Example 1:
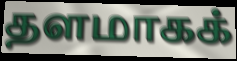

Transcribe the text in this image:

தளமாகக்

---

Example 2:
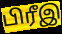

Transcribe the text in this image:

பிரீஇ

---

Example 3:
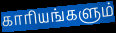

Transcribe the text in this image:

காரியங்களும்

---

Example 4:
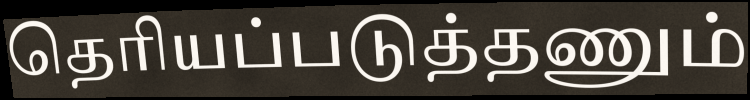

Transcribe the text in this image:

தெரியப்படுத்தணும்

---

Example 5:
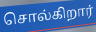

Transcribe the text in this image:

சொல்கிறார்